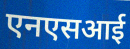
एनएसआई